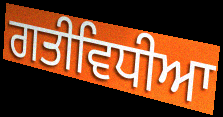
ਗਤੀਵਿਧੀਆ